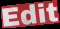
Edit